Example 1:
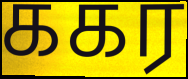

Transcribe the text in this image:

ககர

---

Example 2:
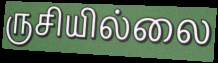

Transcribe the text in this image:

ருசியில்லை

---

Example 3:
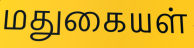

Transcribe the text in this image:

மதுகையள்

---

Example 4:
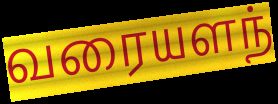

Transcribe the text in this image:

வரையளந்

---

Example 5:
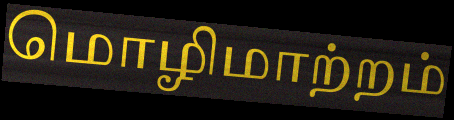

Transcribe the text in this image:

மொழிமாற்றம்